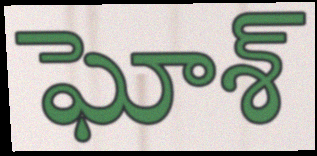
ఘోశ్